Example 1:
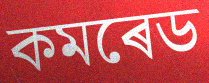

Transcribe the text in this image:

কমৰেড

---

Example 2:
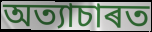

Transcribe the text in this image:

অত্যাচাৰত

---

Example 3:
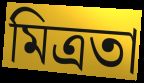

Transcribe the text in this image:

মিত্ৰতা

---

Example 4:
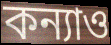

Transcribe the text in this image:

কন্যাও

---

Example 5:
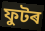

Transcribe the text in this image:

ফুটৰ